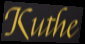
Kuthe